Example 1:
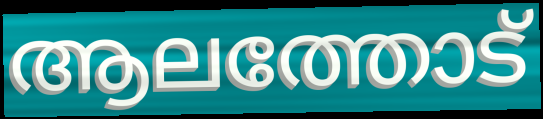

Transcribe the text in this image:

ആലത്തോട്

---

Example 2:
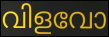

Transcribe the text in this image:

വിളവോ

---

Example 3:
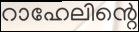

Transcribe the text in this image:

റാഹേലിന്റെ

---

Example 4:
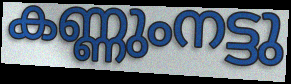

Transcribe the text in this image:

കണ്ണുംനട്ടു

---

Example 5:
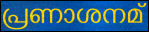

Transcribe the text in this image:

പ്രണാശനമ്